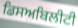
ਡਿਸਅਬਿਲੀਟੀ